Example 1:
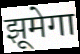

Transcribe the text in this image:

झूमेगा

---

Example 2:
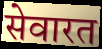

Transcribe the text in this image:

सेवारत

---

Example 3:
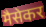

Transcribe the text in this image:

मैसेकर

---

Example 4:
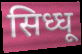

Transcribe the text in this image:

सिध्धू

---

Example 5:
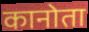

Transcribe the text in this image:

कानोता